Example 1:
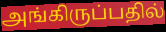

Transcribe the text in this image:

அங்கிருப்பதில்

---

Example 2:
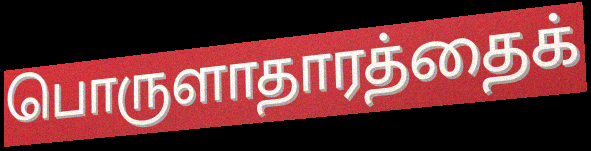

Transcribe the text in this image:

பொருளாதாரத்தைக்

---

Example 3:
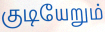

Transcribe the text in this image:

குடியேறும்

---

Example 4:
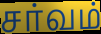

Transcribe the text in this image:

சர்வம்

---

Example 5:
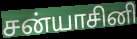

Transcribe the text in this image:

சன்யாசினி